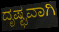
ದೃಷ್ಟವಾಗಿ